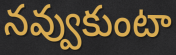
నవ్వుకుంటా